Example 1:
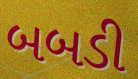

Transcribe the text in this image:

બબડી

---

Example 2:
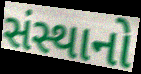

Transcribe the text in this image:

સંસ્થાનો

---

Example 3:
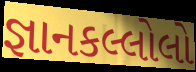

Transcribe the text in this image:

જ્ઞાનકલ્લોલો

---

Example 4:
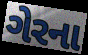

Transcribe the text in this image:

ગેરના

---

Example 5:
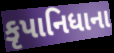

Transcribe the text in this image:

કૃપાનિધાના